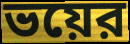
ভয়ের